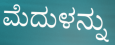
ಮೆದುಳನ್ನು